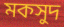
মকসুদ